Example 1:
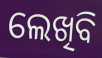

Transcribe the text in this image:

ଲେଖିବି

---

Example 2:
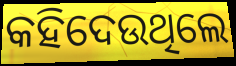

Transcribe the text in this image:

କହିଦେଉଥିଲେ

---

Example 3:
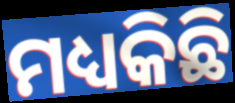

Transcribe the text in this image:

ମଧ୍ୟକିଛି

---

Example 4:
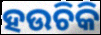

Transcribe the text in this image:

ହଉଚିକି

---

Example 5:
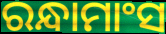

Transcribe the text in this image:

ରନ୍ଧାମାଂସ